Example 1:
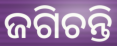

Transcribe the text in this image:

ଜଗିଚନ୍ତି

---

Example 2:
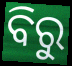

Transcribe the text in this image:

ବିରୁ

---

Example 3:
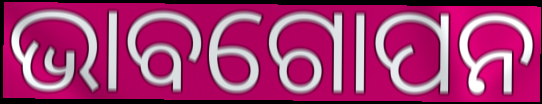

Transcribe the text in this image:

ଭାବଗୋପନ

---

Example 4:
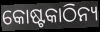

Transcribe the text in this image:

କୋଷ୍ଟକାଠିନ୍ୟ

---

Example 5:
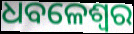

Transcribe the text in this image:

ଧବଳେଶ୍ଵର